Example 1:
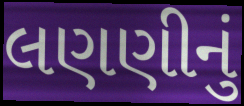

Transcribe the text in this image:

લણણીનું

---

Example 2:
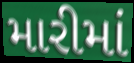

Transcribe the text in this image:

મારીમાં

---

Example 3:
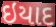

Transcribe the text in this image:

ઇયાદ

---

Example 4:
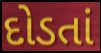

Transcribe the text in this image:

દોડતાં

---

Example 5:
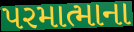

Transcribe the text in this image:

પરમાત્માના